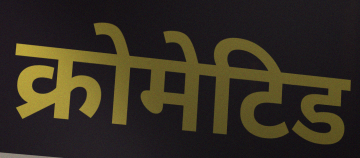
क्रोमेटिड